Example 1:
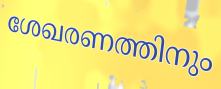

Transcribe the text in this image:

ശേഖരണത്തിനും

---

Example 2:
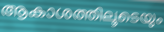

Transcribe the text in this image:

ആകാശത്തിലൂടെയും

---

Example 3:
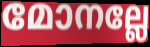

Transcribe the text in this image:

മോനല്ലേ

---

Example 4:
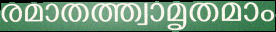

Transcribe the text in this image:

രമാതത്ത്വാമൃതമാം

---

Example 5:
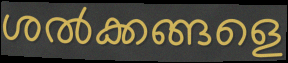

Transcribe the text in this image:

ശൽക്കങ്ങളെ